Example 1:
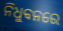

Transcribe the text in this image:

ନିଧୁବନରେ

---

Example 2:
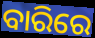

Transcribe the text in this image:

ବାରିରେ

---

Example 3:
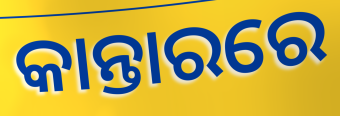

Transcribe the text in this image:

କାନ୍ତାରରେ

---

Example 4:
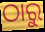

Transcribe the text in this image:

ଠାରୁ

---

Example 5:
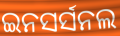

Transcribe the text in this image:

ଇନସର୍ସନଲ